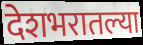
देशभरातल्या